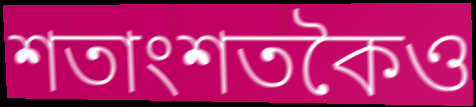
শতাংশতকৈও